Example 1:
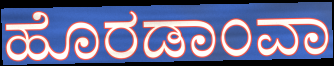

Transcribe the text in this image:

ಹೊರಡಾಂವಾ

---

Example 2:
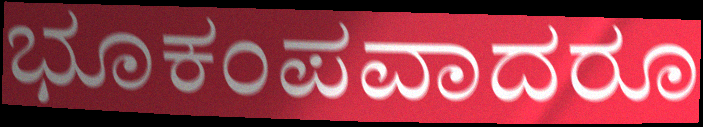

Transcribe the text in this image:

ಭೂಕಂಪವಾದರೂ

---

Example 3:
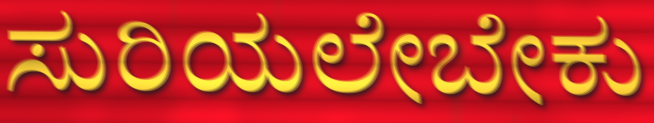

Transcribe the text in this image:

ಸುರಿಯಲೇಬೇಕು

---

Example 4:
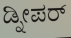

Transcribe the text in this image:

ಡ್ನೀಪರ್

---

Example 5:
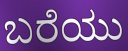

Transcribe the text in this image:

ಬರೆಯು